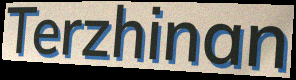
Terzhinan